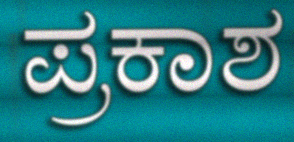
ಪ್ರಕಾಶ